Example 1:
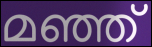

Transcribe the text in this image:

മഞ്ഞ്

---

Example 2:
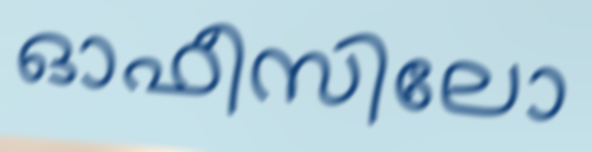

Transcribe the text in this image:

ഓഫീസിലോ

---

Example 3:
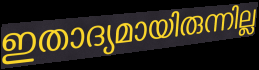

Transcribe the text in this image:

ഇതാദ്യമായിരുന്നില്ല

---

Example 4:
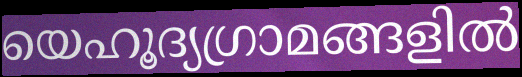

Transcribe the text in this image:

യെഹൂദ്യഗ്രാമങ്ങളിൽ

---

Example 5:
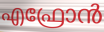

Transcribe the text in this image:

എഫ്രോൻ